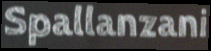
Spallanzani